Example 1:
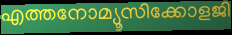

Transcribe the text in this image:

എത്തനോമ്യൂസിക്കോളജി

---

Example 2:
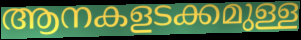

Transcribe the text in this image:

ആനകളടക്കമുള്ള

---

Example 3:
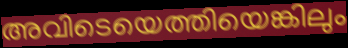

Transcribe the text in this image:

അവിടെയെത്തിയെങ്കിലും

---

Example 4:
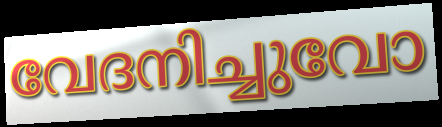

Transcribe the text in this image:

വേദനിച്ചുവോ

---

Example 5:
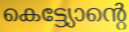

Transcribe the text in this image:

കെട്ട്യോന്റെ